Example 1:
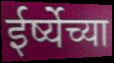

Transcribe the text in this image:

ईर्ष्येच्या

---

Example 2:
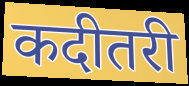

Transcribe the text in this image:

कदीतरी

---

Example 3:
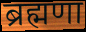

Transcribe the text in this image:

ब्रह्मणा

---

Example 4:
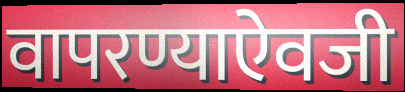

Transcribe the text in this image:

वापरण्याऐवजी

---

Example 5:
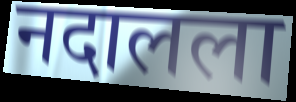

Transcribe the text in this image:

नदालला